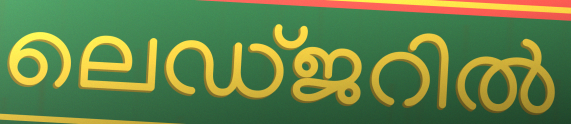
ലെഡ്ജറിൽ